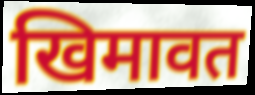
खिमावत